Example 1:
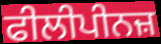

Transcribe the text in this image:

ਫੀਲੀਪੀਨਜ਼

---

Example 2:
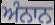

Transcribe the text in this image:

ਅੰਨਾਨ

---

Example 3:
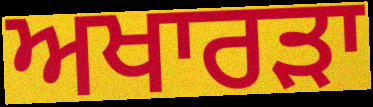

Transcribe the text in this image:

ਅਖਾਰੜਾ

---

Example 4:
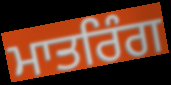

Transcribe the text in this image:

ਮਾਤਰਿੰਗ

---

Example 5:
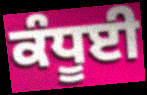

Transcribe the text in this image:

ਕੰਧੂਈ